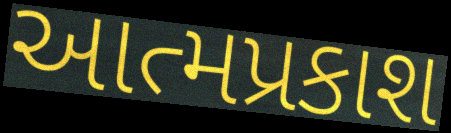
આત્મપ્રકાશ